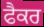
ਫੈਕਰ